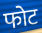
फोट